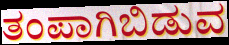
ತಂಪಾಗಿಬಿಡುವ